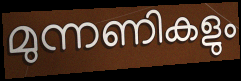
മുന്നണികളും